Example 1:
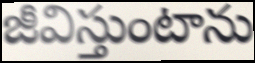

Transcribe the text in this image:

జీవిస్తుంటాను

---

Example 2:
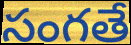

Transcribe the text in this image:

సంగతే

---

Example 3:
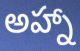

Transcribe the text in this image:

అహ్నా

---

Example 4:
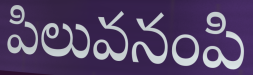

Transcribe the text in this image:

పిలువనంపి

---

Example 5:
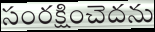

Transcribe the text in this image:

సంరక్షించెదను